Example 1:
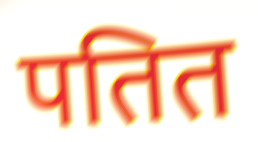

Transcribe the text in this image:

पतित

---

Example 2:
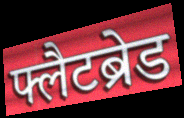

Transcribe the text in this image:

फ्लैटब्रेड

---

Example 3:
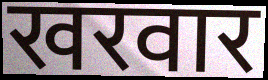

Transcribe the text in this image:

खरवार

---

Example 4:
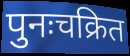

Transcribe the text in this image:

पुनःचक्रित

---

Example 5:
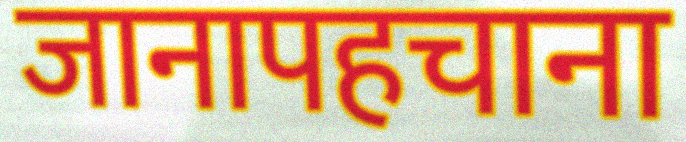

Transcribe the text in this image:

जानापहचाना